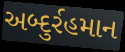
અબ્દુર્રહમાન